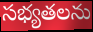
సభ్యతలను